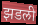
झडली